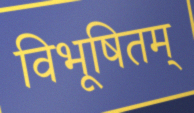
विभूषितम्